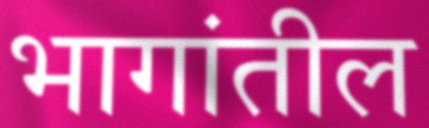
भागांतील